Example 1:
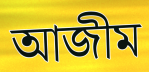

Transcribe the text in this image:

আজীম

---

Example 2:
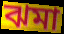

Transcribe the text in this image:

ঝমা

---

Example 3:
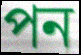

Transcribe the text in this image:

পন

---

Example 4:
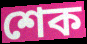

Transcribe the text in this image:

শেক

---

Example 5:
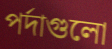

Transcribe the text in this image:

পর্দাগুলো